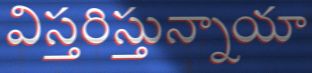
విస్తరిస్తున్నాయా